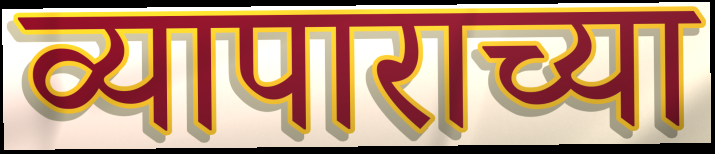
व्यापाराच्या